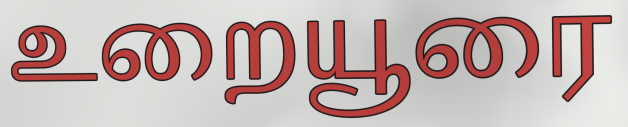
உறையூரை